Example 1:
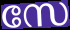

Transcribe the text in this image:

സേ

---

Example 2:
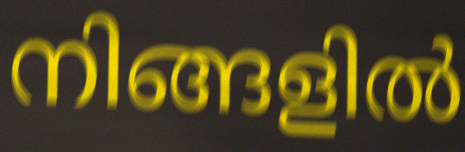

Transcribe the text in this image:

നിങ്ങളിൽ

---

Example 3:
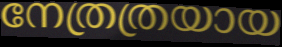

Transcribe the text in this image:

നേത്രത്രയായ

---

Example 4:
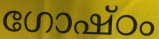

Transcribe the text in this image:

ഗോഷ്ഠം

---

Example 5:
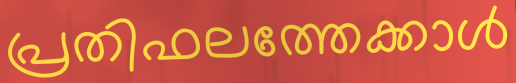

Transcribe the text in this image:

പ്രതിഫലത്തേക്കാൾ